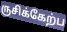
ருசிக்கேற்ப